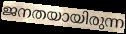
ജനതയായിരുന്ന